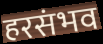
हरसंभव